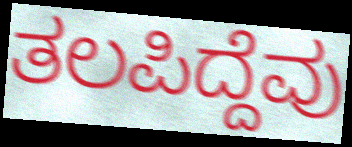
ತಲಪಿದ್ದೆವು